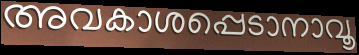
അവകാശപ്പെടാനാവൂ